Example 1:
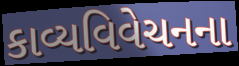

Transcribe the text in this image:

કાવ્યવિવેચનના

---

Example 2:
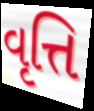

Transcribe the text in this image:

વૃત્તિ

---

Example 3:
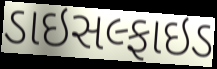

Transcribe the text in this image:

ડાઇસલ્ફાઇડ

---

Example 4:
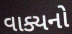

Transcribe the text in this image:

વાક્યનો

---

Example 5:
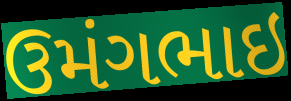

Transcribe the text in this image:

ઉમંગભાઇ